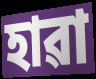
হাৱা